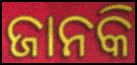
ଜାନକି